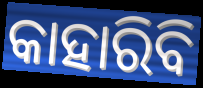
କାହାରିବି